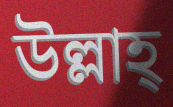
উল্লাহ্